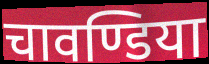
चावण्डिया